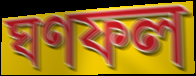
ঘণফল